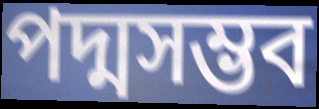
পদ্মসম্ভব